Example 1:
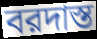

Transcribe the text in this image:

বরদাস্ত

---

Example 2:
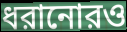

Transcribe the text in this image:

ধরানোরও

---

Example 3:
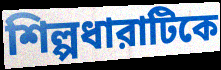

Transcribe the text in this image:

শিল্পধারাটিকে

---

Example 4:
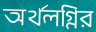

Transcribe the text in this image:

অর্থলগ্নির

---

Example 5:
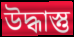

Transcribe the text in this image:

উদ্ধাস্তু